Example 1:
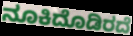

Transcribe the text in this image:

ನೂಕಿದೊಡಿರದೆ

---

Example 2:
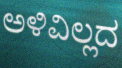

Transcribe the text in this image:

ಅಳಿವಿಲ್ಲದ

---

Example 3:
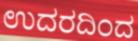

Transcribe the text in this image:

ಉದರದಿಂದ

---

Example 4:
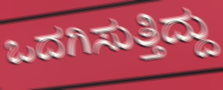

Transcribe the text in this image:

ಒದಗಿಸುತ್ತಿದ್ದು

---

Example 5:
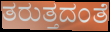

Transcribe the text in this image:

ತರುತ್ತದಂತೆ